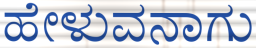
ಹೇಳುವನಾಗು